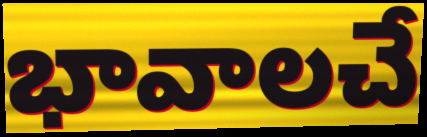
భావాలచే